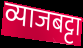
व्याजबट्टा